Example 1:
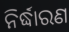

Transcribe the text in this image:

ନିର୍ଦ୍ଧାରଣ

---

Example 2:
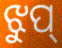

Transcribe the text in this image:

ଝୁପ୍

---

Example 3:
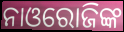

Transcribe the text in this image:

ନାଓରୋଜିଙ୍କ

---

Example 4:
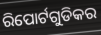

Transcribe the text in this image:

ରିପୋର୍ଟଗୁଡିକର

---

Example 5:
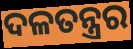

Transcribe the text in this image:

ଦଳତନ୍ତ୍ରର